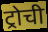
ट्रोची